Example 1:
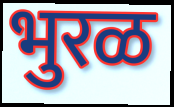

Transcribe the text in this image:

भुरळ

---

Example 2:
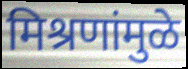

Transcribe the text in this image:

मिश्रणांमुळे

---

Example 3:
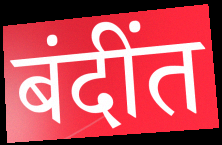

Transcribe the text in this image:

बंदींत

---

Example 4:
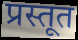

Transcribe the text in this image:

प्रस्तूत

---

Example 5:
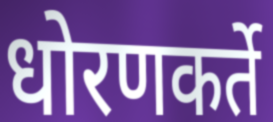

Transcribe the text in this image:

धोरणकर्ते